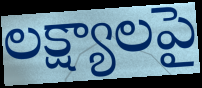
లక్ష్యాలపై